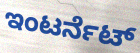
ಇಂಟರ್ನೆಟ್